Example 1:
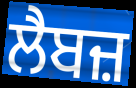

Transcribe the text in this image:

ਲੈਬਜ਼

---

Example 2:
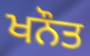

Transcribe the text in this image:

ਖਨੌਤ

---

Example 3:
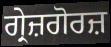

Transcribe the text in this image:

ਗ੍ਰੇਜ਼ਗੋਰਜ਼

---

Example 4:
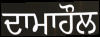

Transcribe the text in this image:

ਦਾਮਾਹੌਲ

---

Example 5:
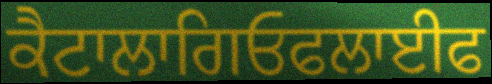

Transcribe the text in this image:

ਕੈਟਾਲਾਗਿਓਫਲਾਈਫ